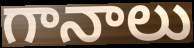
గానాలు